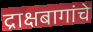
द्राक्षबागांचे